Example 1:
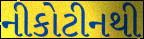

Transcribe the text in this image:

નીકોટીનથી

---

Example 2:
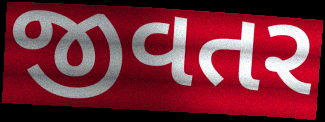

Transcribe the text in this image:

જીવતર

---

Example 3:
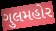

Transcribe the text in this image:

ગુલમહોર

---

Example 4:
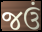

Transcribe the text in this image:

જઉં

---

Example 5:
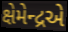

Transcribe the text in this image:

ક્ષેમેન્દ્રએ